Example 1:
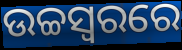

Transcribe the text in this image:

ଉଚ୍ଚସ୍ୱରରେ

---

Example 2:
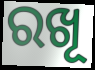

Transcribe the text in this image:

ରଖୂ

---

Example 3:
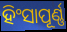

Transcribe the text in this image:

ହିଂସାପୂର୍ଣ୍ଣ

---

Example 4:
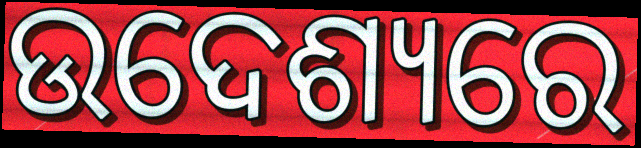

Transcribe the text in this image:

ଉଦେଶ୍ୟରେ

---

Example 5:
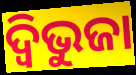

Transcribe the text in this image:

ଦ୍ବିଭୁଜା